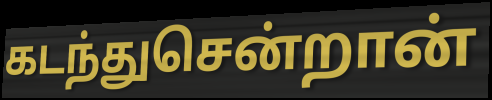
கடந்துசென்றான்